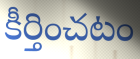
కీర్తించటం